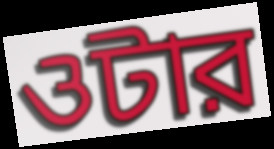
ওটার